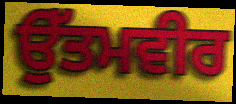
ਉੱਤਮਵੀਰ